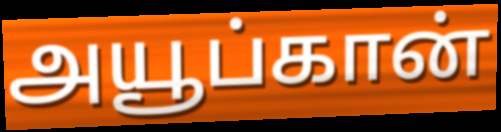
அயூப்கான்